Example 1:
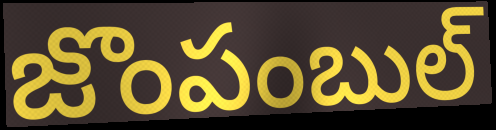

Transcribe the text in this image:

జొంపంబుల్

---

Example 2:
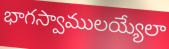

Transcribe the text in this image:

భాగస్వాములయ్యేలా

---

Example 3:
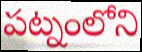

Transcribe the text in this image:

పట్నంలోని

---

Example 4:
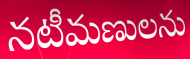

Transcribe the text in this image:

నటీమణులను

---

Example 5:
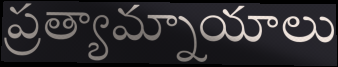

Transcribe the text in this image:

ప్రత్యామ్నాయాలు